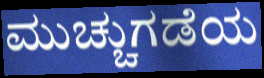
ಮುಚ್ಚುಗಡೆಯ